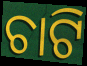
ଚାଟି